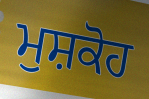
ਮੁਸ਼ਕੋਹ